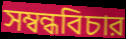
সম্বন্ধবিচার